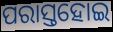
ପରାସ୍ତହୋଇ